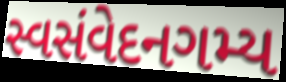
સ્વસંવેદનગમ્ય